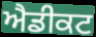
ਐਡੀਕਟ